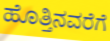
ಹೊತ್ತಿನವರೆಗೆ